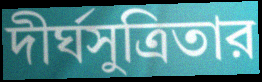
দীর্ঘসুত্রিতার